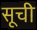
सूची